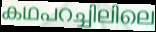
കഥപറച്ചിലിലെ